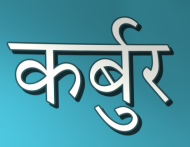
कर्बुर